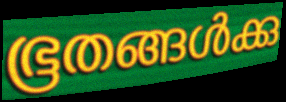
ഭൂതങ്ങൾക്കു